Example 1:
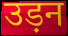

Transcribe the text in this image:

उड़न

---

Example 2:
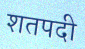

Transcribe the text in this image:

शतपदी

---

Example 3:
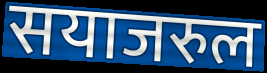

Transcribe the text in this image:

सयाजरुल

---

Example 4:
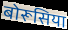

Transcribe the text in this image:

बोरूसिया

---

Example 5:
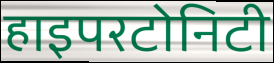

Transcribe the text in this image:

हाइपरटोनिटी